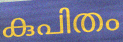
കുപിതം